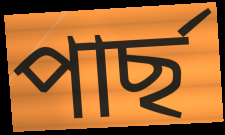
পাৰ্ছ